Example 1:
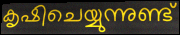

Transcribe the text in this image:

കൃഷിചെയ്യുന്നുണ്ട്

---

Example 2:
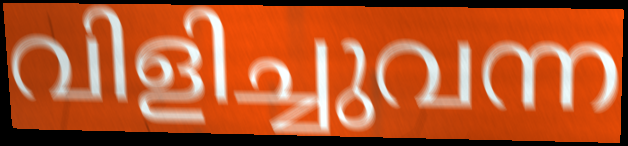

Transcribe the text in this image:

വിളിച്ചുവന്ന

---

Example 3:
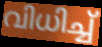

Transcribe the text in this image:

വിധിച്ച്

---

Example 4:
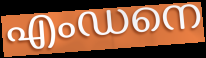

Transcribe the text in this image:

എംഡനെ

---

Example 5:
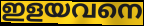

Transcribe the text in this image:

ഇളയവനെ